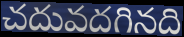
చదువదగినది